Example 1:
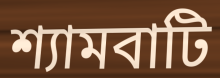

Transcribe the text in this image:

শ্যামবাটি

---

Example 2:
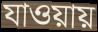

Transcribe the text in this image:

যাওয়ায়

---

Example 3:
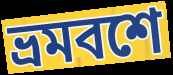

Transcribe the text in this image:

ভ্রমবশে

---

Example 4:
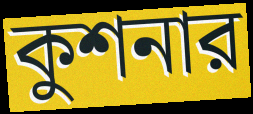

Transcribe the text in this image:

কুশনার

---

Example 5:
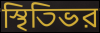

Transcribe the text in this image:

স্থিতিভর